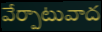
వేర్పాటువాద